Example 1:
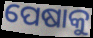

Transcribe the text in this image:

ପେଷାକୁ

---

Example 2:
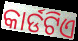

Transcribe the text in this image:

କାର୍ଡଟିଏ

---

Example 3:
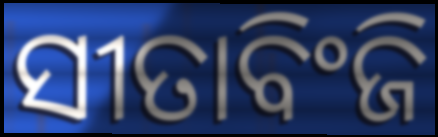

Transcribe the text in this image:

ସୀତାବିଂଜି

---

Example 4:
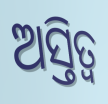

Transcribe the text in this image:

ଅସ୍ତିତ୍ଵ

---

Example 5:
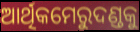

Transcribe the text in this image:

ଆର୍ଥିକମେରୁଦଣ୍ଡକୁ